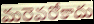
మరెవరోకాదు